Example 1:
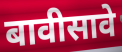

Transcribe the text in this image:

बावीसावे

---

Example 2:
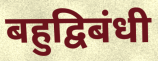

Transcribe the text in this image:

बहुद्विबंधी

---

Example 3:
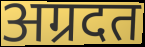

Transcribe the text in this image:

अग्रदत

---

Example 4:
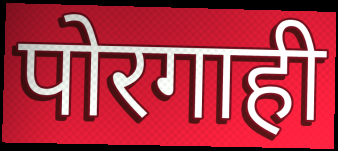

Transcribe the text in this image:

पोरगाही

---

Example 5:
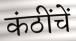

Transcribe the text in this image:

कंठींचें